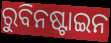
ରୁବିନଷ୍ଟାଇନ